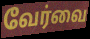
வேர்வை